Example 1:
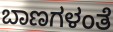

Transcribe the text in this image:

ಬಾಣಗಳಂತೆ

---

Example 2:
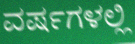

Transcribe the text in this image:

ವರ್ಷಗಳಲ್ಲಿ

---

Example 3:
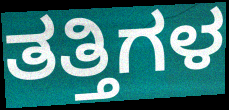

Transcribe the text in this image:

ತತ್ತಿಗಳ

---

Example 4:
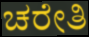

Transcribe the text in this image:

ಚರೇತಿ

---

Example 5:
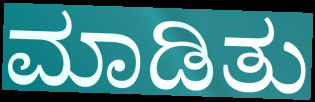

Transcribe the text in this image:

ಮಾಡಿತು